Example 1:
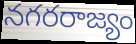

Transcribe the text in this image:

నగరరాజ్యం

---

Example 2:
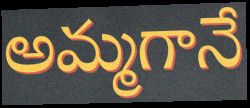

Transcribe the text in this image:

అమ్మగానే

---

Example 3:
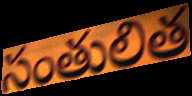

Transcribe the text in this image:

సంతులిత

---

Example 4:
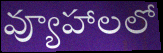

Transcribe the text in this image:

వ్యూహాలలో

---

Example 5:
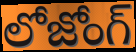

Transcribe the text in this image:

లోజోంగ్